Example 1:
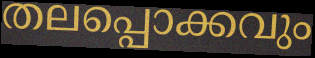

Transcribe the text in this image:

തലപ്പൊക്കവും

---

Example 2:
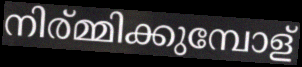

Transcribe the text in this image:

നിര്മ്മിക്കുമ്പോള്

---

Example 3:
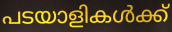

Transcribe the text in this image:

പടയാളികൾക്ക്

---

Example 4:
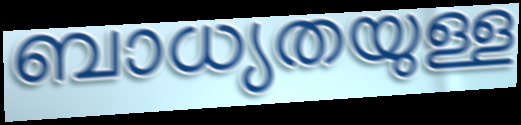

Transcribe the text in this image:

ബാധ്യതയുള്ള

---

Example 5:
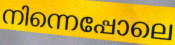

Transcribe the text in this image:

നിന്നെപ്പോലെ